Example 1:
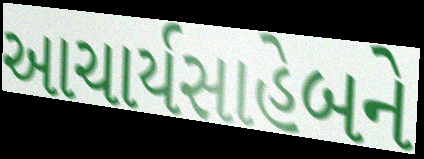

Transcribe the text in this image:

આચાર્યસાહેબને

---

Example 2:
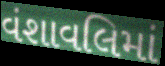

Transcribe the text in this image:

વંશાવલિમાં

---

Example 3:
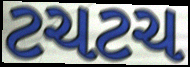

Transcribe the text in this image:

ટચટચ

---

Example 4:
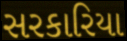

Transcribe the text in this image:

સરકારિયા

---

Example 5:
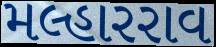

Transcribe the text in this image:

મલ્હારરાવ